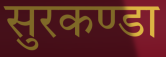
सुरकण्डा